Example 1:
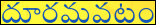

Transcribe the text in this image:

దూరమవటం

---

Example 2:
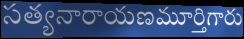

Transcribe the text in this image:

సత్యనారాయణమూర్తిగారు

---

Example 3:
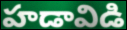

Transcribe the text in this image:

హడావిడి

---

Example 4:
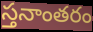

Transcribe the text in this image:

స్తనాంతరం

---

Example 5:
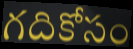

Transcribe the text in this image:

గదికోసం